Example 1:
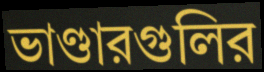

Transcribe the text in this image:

ভাণ্ডারগুলির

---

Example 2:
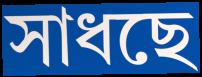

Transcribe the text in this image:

সাধছে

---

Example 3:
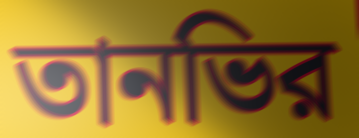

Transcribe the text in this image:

তানভির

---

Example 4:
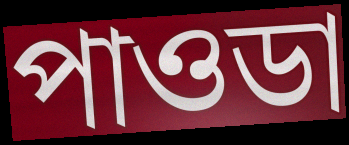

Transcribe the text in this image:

পাওডা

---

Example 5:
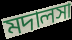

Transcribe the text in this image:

মদালসা